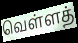
வெள்ளத்